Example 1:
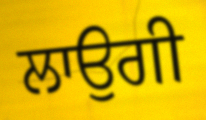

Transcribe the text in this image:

ਲਾਉਗੀ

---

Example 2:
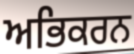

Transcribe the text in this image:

ਅਭਿਕਰਨ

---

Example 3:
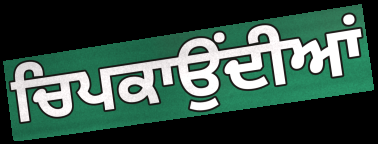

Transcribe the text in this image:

ਚਿਪਕਾਉਂਦੀਆਂ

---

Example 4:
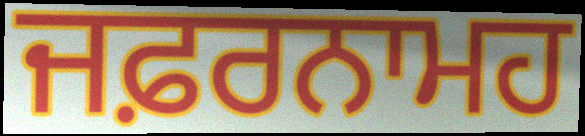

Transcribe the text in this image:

ਜਫ਼ਰਨਾਮਹ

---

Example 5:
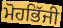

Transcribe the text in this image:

ਮੋਹਭਿੱਜੀ